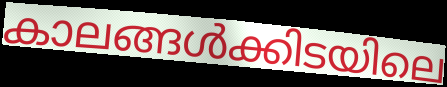
കാലങ്ങൾക്കിടയിലെ